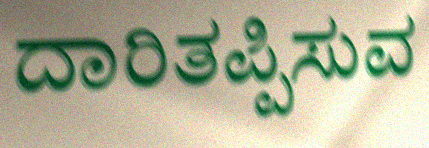
ದಾರಿತಪ್ಪಿಸುವ